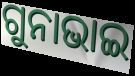
ଗୁନାଭାଇ